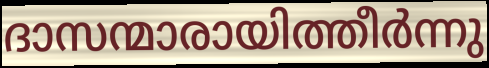
ദാസന്മാരായിത്തീർന്നു